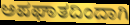
ಅಪಘಾತದಿಂದಾಗಿ